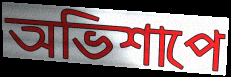
অভিশাপে